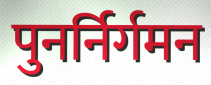
पुनर्निर्गमन